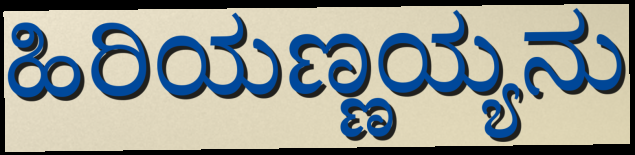
ಹಿರಿಯಣ್ಣಯ್ಯನು